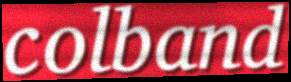
colband